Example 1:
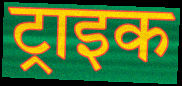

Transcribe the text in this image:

ट्राइक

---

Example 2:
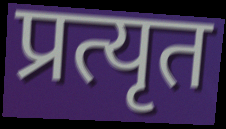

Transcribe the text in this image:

प्रत्यृत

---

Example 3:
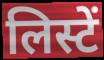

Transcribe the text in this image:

लिस्टें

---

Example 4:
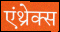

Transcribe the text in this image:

एंथ्रेक्स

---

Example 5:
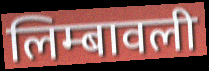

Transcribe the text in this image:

लिम्बावली